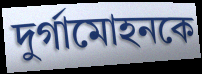
দুর্গামোহনকে